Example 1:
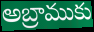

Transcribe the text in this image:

అబ్రాముకు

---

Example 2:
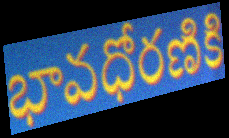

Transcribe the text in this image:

భావధోరణికి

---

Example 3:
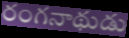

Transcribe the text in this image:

రంగనాథుడు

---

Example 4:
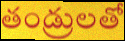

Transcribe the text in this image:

తండ్రులతో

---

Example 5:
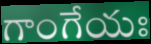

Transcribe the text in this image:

గాంగేయః